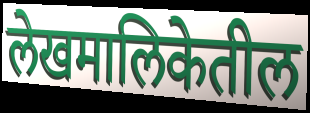
लेखमालिकेतील